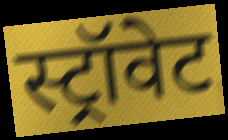
स्ट्रॉवेट